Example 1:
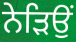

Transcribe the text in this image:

ਨੇੜਿਉਂ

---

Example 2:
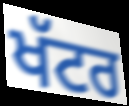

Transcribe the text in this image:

ਖੱਟਰ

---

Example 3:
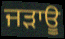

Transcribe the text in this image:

ਜੜਾਊ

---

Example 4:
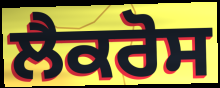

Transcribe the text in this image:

ਲੈਕਰੋਸ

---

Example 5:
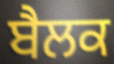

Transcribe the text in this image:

ਬੈਲਕ